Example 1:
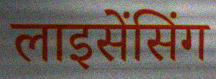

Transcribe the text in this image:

लाइसेंसिंग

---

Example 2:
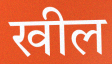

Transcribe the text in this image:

खील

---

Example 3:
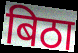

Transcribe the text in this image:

बिठा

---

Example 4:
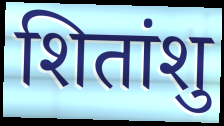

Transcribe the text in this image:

शितांशु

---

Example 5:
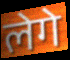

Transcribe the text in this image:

लेगे